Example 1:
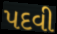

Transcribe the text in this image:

પદવી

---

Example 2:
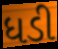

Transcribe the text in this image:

ધડી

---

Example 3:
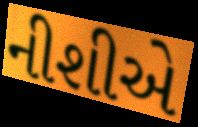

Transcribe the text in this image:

નીશીએ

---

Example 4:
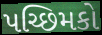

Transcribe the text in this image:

પચ્છિમકો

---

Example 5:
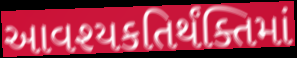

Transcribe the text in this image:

આવશ્યકતિર્થંક્તિમાં